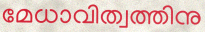
മേധാവിത്വത്തിനു